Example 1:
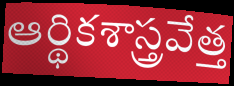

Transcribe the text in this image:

ఆర్థికశాస్త్రవేత్త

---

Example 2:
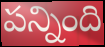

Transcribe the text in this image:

పన్నింది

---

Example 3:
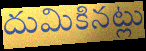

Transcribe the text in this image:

దుమికినట్లు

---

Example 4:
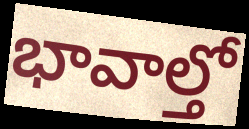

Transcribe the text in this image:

భావాల్తో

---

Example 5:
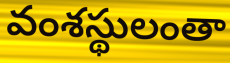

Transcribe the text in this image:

వంశస్థులంతా